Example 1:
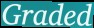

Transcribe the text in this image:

Graded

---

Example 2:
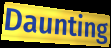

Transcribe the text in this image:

Daunting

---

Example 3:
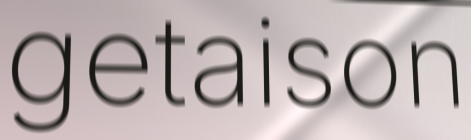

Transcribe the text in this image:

getaison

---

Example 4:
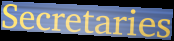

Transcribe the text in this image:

Secretaries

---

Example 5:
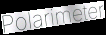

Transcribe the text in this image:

Polarimeter